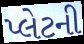
પ્લેટની